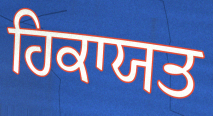
ਹਿਕਾਯਤ